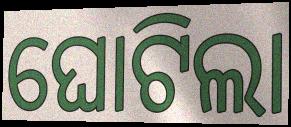
ଘୋଟିଲା